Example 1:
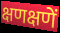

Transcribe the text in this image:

क्षणक्षणें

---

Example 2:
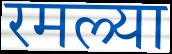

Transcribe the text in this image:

रमल्या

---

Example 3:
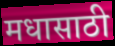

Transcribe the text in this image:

मधासाठी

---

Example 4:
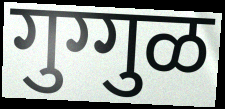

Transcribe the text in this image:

गुग्गुळ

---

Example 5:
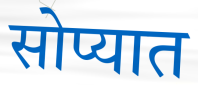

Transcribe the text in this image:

सोप्यात